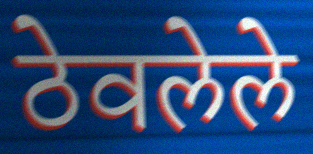
ठेवलेले